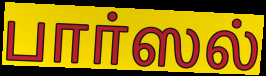
பார்ஸல்